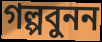
গল্পবুনন